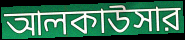
আলকাউসার